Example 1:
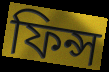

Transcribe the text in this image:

ফিন্স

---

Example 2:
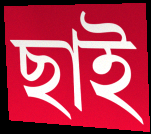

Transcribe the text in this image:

ছাই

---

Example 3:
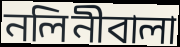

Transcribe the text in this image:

নলিনীবালা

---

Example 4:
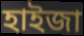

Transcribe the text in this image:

হাইজা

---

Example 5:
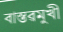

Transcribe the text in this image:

বাস্তৱমুখী